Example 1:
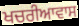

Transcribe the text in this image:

ਖਚਰੀਆਵਾਸ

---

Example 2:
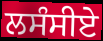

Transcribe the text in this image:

ਲਸੰਸੀਏ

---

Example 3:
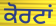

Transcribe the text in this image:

ਕੋਰਟਾਂ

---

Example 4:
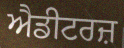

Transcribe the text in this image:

ਐਡੀਟਰਜ਼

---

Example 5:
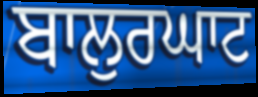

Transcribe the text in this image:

ਬਾਲੁਰਘਾਟ